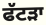
ਫੱਟੜਾ